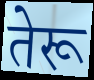
तेरू